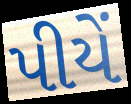
પીયેં